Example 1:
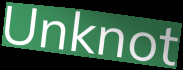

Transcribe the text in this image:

Unknot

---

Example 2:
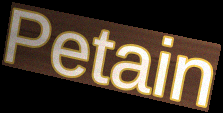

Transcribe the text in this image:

Petain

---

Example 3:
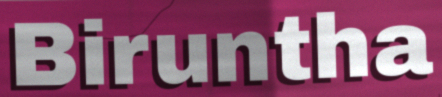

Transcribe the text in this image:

Biruntha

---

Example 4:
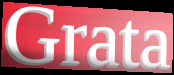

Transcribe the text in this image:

Grata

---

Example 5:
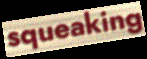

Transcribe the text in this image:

squeaking